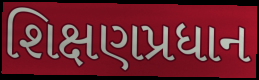
શિક્ષણપ્રધાન